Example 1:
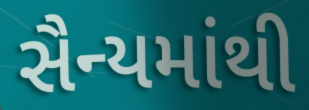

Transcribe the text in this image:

સૈન્યમાંથી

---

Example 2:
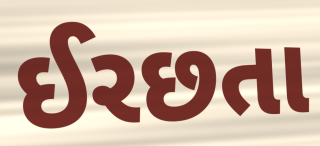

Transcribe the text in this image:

ઈરછતા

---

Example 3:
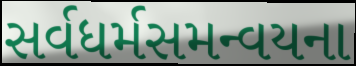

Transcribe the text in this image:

સર્વધર્મસમન્વયના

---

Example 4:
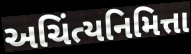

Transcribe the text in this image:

અચિંત્યનિમિત્તા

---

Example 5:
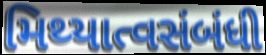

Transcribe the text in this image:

મિથ્યાત્વસંબંધી